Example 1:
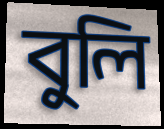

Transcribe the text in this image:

বুলি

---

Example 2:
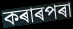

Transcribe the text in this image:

কৰাৰপৰা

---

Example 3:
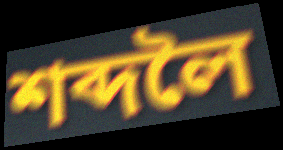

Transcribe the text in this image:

শব্দলৈ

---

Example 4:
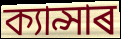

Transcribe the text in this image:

ক্যান্সাৰ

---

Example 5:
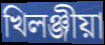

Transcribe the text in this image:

খিলঞ্জীয়া